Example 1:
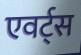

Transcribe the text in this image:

एवर्ट्स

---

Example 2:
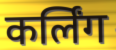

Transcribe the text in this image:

कर्लिंग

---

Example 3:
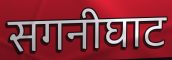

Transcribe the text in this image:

सगनीघाट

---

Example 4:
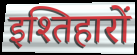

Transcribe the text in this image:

इश्तिहारों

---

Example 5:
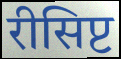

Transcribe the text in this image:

रीसिप्ट